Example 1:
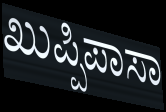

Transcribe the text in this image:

ಖುಪ್ಪಿಪಾಸಾ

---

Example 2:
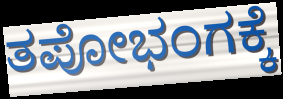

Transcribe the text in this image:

ತಪೋಭಂಗಕ್ಕೆ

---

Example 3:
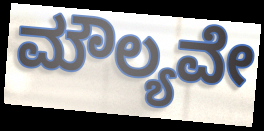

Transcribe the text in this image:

ಮೌಲ್ಯವೇ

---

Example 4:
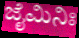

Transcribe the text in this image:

ಜೈಮಿನಿಃ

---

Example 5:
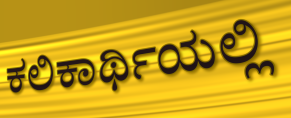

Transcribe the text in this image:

ಕಲಿಕಾರ್ಥಿಯಲ್ಲಿ